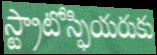
స్ట్రాటోస్ఫియరుకు